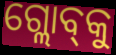
ଗ୍ଲୋବ୍‌କୁ